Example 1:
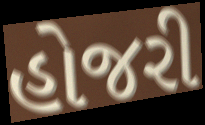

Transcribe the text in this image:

હોજરી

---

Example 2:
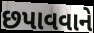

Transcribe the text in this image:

છપાવવાને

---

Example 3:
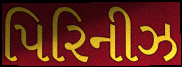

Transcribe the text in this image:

પિરિનીઝ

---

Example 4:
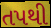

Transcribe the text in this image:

તપથી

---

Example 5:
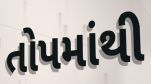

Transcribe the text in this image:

તોપમાંથી